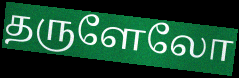
தருளேலோ